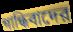
গান্ধিবাদের